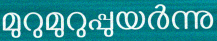
മുറുമുറുപ്പുയർന്നു